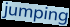
jumping